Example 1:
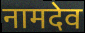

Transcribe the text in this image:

नामदेव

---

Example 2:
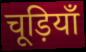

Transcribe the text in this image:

चूड़ियाँ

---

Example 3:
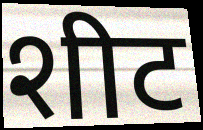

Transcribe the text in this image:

शीट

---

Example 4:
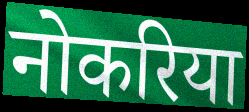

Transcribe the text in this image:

नोकरिया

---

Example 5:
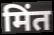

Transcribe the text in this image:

मिंत